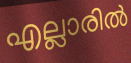
എല്ലാരിൽ